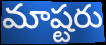
మాష్టరు